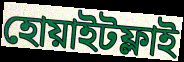
হোয়াইটফ্লাই